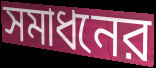
সমাধনের